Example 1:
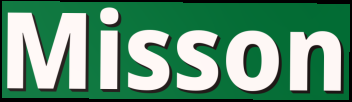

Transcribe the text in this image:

Misson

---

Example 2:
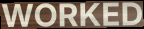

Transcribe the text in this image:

WORKED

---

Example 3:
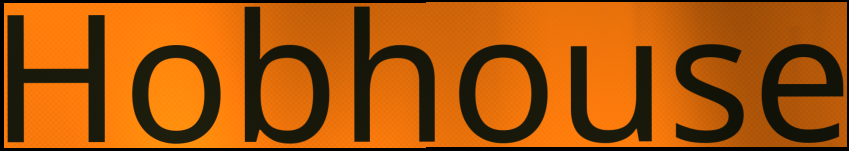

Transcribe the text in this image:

Hobhouse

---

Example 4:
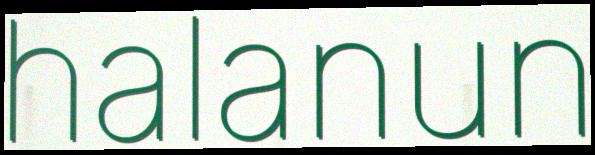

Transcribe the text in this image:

halanun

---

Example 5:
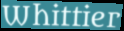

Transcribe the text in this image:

Whittier